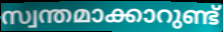
സ്വന്തമാക്കാറുണ്ട്